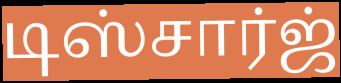
டிஸ்சார்ஜ்